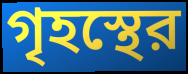
গৃহস্থের